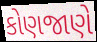
કોણજાણે